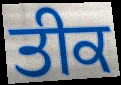
ਤੀਕ